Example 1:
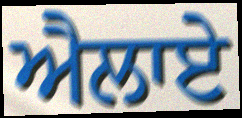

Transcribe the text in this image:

ਐਲਾਏ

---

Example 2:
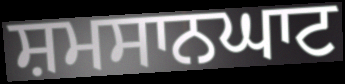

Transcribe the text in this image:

ਸ਼ਮਸਾਨਘਾਟ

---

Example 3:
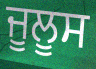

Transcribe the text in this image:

ਜੂਲੂਸ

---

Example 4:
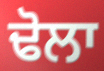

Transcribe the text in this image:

ਢੋਲਾ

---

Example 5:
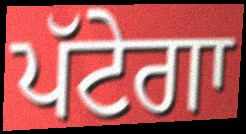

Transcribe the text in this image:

ਪੱਟੇਗਾ